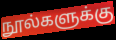
நூல்களுக்கு